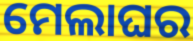
ମେଲାଘର